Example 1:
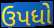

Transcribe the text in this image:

ઉપધો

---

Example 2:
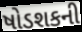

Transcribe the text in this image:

ષોડશકની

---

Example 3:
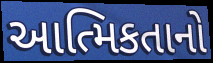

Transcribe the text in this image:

આત્મિકતાનો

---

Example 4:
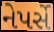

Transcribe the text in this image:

નેપર્સે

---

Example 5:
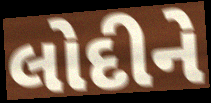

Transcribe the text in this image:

લોદીને